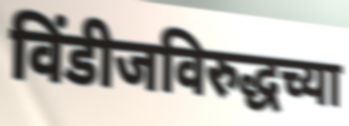
विंडीजविरुद्धच्या